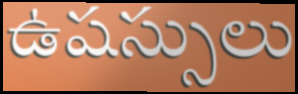
ఉషస్సులు